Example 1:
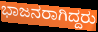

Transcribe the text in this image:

ಭಾಜನರಾಗಿದ್ದರು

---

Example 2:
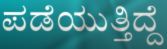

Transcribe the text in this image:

ಪಡೆಯುತ್ತಿದ್ದೆ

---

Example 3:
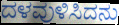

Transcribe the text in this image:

ದಳವುಳಿಸಿದನು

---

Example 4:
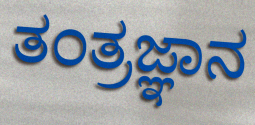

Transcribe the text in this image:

ತಂತ್ರಜ್ಞಾನ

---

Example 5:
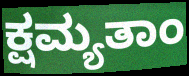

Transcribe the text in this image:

ಕ್ಷಮ್ಯತಾಂ